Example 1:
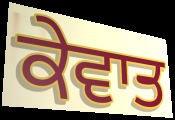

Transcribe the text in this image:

ਕੇਵਾਤ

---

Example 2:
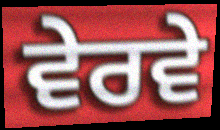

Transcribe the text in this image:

ਵੇਰਵੇ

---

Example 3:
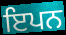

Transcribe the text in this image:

ਇਪਨ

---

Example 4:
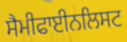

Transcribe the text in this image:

ਸੈਮੀਫਾਈਨਲਿਸਟ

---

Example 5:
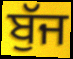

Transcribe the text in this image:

ਬੁੱਜ